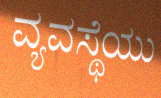
ವ್ಯವಸ್ಥೆಯು